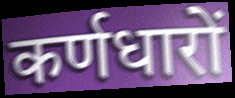
कर्णधारों